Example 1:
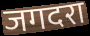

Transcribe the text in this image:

जगदरा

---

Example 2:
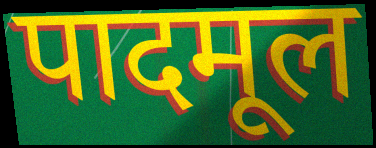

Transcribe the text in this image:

पादमूल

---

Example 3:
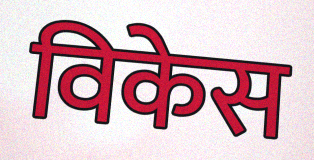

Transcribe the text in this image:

विकेस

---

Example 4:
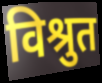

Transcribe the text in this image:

विश्रुत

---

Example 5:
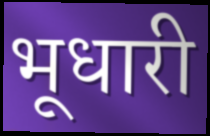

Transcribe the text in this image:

भूधारी